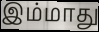
இம்மாது